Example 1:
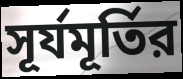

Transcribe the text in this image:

সূর্যমূর্তির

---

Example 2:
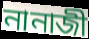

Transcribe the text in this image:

নানাজী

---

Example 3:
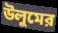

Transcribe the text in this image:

উলুমের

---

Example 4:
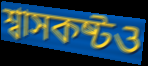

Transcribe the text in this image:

শ্বাসকষ্টও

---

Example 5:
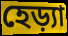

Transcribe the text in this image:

হেড়্যা